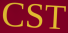
CST